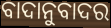
ବାଦାନୁବାଦର